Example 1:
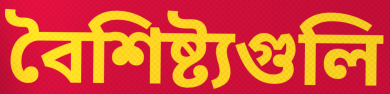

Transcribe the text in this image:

বৈশিষ্ট্যগুলি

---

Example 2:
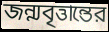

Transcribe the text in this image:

জন্মবৃত্তান্তের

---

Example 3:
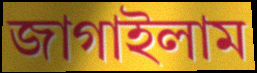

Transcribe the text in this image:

জাগাইলাম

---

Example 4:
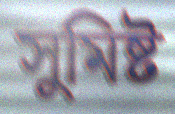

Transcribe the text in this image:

সুমিষ্ট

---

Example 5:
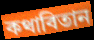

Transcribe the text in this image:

কথাবিতান